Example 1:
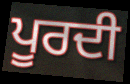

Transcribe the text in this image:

ਪੂਰਦੀ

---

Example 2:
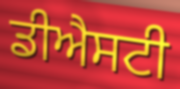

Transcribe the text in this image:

ਡੀਐਸਟੀ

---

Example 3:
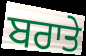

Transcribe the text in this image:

ਬਰਾਤੇ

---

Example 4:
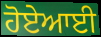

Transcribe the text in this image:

ਹੋਏਆਈ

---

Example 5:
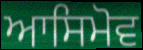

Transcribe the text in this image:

ਆਸਿਮੋਵ